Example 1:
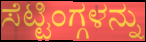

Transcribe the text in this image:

ಸೆಟ್ಟಿಂಗ್ಗಳನ್ನು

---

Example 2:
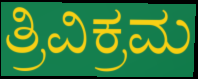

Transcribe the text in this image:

ತ್ರಿವಿಕ್ರಮ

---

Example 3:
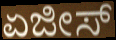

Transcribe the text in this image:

ಏಜೀಸ್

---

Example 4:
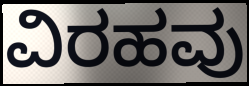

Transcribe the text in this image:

ವಿರಹವು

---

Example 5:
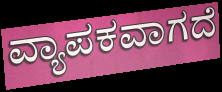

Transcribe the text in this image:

ವ್ಯಾಪಕವಾಗದೆ